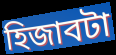
হিজাবটা